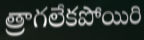
త్రాగలేకపోయిరి